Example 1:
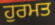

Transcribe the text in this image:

ਹੁਰਮਤ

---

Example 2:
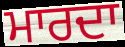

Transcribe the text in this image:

ਮਾਰਦਾ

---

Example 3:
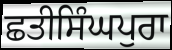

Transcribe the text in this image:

ਛਤੀਸਿੰਘਪੁਰਾ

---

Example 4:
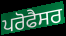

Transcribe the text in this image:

ਪਰੋਫੈਸਰ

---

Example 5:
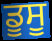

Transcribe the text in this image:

ਡੂਸੂ